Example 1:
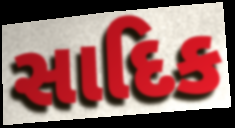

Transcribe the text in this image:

સાદિક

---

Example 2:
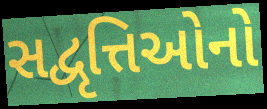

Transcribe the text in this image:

સદ્વૃત્તિઓનો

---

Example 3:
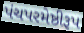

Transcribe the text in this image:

પંચપરમેષ્ઠીરૂપ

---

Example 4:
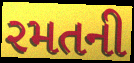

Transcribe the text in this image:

રમતની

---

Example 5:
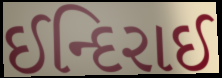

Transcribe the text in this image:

ઈન્દિરાઈ